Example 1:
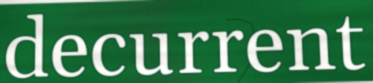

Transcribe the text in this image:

decurrent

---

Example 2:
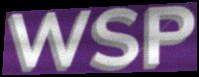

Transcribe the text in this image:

WSP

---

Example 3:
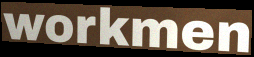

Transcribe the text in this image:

workmen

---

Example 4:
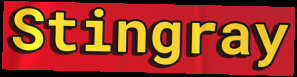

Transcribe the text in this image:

Stingray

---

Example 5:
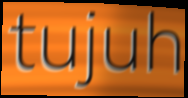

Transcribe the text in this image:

tujuh